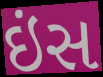
ઇંસ